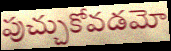
పుచ్చుకోవడమో